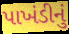
પાખંડીનું